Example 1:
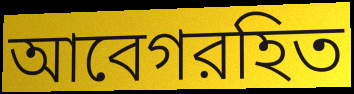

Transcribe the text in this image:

আবেগরহিত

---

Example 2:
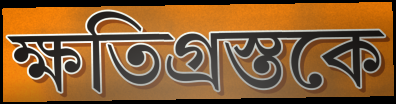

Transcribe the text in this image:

ক্ষতিগ্রস্তকে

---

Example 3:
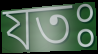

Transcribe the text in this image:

যতঃ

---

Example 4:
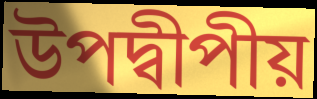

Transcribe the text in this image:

উপদ্বীপীয়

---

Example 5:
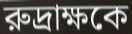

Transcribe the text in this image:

রুদ্রাক্ষকে